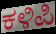
ಕಳಿಪಿ